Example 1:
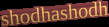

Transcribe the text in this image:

shodhashodh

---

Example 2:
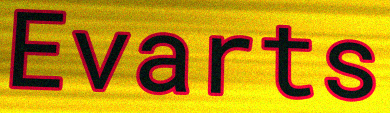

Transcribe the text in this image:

Evarts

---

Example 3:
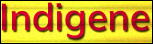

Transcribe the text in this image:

Indigene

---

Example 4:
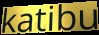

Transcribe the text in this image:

katibu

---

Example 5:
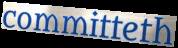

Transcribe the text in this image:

committeth